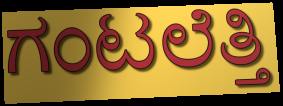
ಗಂಟಲೆತ್ತಿ